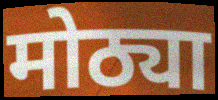
मोठ्या